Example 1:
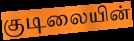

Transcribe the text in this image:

குடிலையின்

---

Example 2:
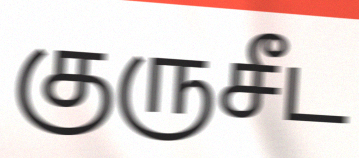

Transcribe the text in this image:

குருசீட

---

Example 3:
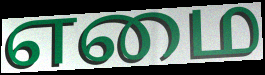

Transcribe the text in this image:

எமை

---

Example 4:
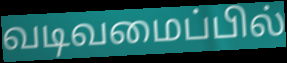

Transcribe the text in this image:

வடிவமைப்பில்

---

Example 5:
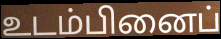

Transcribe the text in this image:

உடம்பினைப்